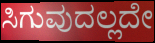
ಸಿಗುವುದಲ್ಲದೇ